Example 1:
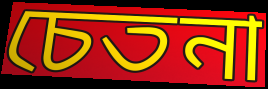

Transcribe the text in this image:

চেতনা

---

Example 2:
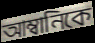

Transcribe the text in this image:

আম্বানিকে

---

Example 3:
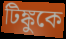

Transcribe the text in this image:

টিঙ্কুকে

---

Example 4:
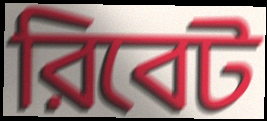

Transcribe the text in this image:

রিবেট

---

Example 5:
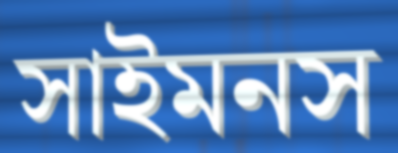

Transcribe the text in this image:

সাইমনস